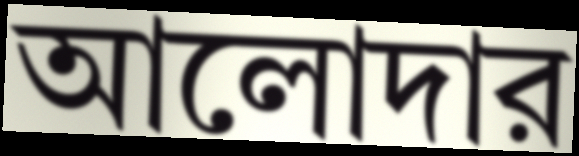
আলোদার